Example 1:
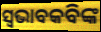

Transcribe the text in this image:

ସ୍ଵଭାବକବିଙ୍କ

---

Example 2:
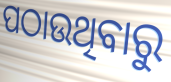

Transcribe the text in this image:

ପଠାଉଥିବାରୁ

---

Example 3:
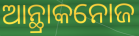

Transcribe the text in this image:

ଆନ୍ଥ୍ରାକନୋଜ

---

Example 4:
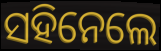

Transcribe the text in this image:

ସହିନେଲେ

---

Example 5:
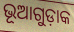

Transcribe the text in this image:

ଭୂଆଗୁଡ଼ାକ